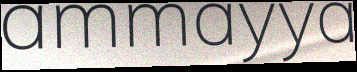
ammayya